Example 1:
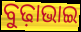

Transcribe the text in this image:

ବୁଢ଼ାଭାଇ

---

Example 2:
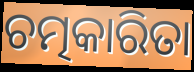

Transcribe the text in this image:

ଚତ୍ମକାରିତା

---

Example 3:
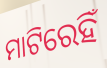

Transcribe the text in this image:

ମାଟିରେହିଁ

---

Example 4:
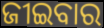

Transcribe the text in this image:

ଜୀଇବାର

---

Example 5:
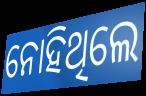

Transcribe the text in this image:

ନୋହିଥିଲେ